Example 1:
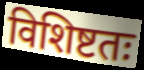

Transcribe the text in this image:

विशिष्टतः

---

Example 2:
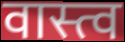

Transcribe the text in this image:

वास्त्व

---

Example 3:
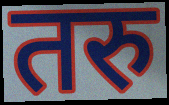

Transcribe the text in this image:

तरु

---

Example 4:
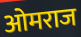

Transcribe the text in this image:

ओमराज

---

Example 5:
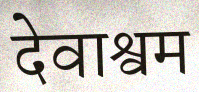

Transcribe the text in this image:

देवाश्वम